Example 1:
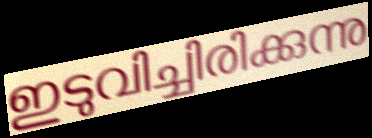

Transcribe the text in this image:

ഇടുവിച്ചിരിക്കുന്നു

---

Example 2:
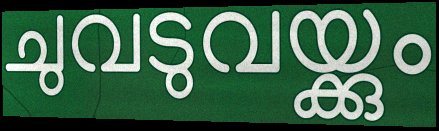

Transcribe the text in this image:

ചുവടുവയ്ക്കും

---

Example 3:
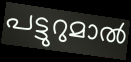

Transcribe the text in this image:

പട്ടുറുമാൽ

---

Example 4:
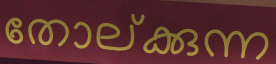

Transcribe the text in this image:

തോല്ക്കുന്ന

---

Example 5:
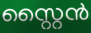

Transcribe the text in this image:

സ്റ്റൈൻ